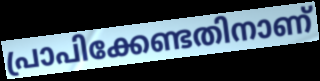
പ്രാപിക്കേണ്ടതിനാണ്